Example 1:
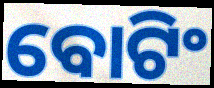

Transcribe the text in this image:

ବୋଟିଂ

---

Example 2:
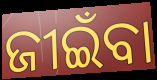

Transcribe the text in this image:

ଜୀଇଁବା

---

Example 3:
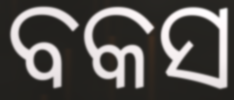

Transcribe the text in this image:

ବକସ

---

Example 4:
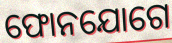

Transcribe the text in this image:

ଫୋନଯୋଗେ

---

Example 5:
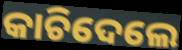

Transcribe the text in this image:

କାଚିଦେଲେ